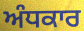
ਅੰਧਕਾਰ